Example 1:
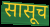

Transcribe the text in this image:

सासूच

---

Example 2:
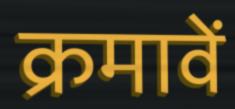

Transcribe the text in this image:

क्रमावें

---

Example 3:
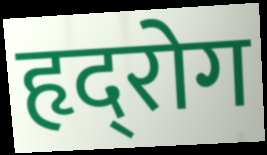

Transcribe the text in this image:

हृद्‍रोग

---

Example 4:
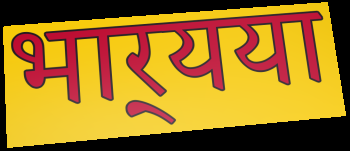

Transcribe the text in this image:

भार्यया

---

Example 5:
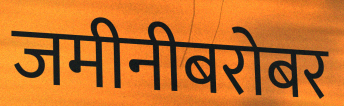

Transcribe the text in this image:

जमीनीबरोबर